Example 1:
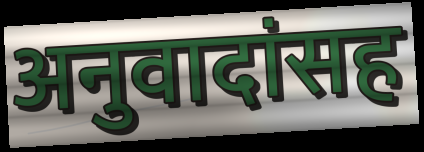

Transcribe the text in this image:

अनुवादांसह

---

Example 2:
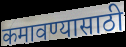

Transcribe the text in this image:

कमावण्यासाठी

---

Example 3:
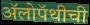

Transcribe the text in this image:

ॲलोपॅथीची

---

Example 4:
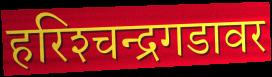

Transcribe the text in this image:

हरिश्चन्द्रगडावर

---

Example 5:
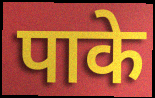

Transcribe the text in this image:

पाके